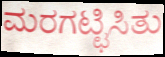
ಮರಗಟ್ಟಿಸಿತು